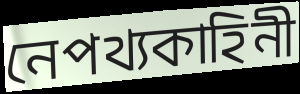
নেপথ্যকাহিনী